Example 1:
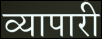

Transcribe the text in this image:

व्यापारी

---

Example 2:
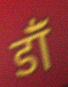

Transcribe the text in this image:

डॉँ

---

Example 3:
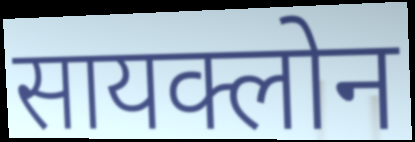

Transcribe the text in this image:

सायक्लोन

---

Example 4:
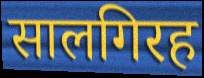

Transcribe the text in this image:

सालगिरह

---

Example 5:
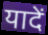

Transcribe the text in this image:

यादें